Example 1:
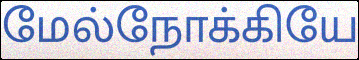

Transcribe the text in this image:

மேல்நோக்கியே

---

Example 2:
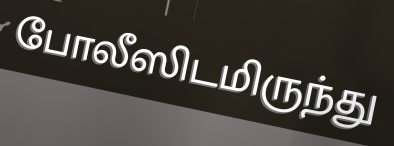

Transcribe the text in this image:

போலீஸிடமிருந்து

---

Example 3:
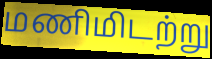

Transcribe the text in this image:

மணிமிடற்று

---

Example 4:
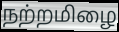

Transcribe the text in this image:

நற்றமிழை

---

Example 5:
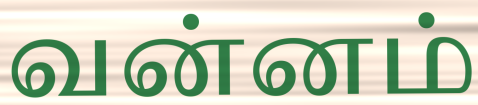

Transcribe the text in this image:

வன்னம்